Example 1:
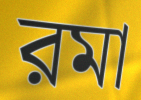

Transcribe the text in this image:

রমা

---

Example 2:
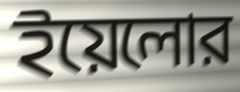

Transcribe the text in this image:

ইয়েলোর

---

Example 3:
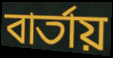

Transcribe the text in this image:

বার্তায়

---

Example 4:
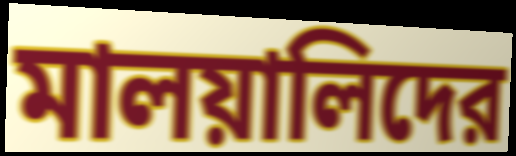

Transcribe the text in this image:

মালয়ালিদের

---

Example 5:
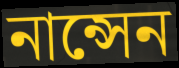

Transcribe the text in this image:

নান্সেন